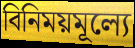
বিনিময়মূল্যে